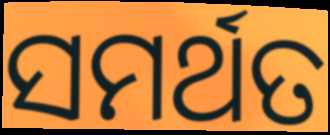
ସମର୍ଥତ